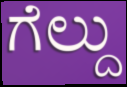
ಗೆಲ್ದು